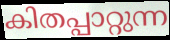
കിതപ്പാറ്റുന്ന